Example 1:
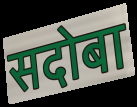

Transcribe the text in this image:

सदोबा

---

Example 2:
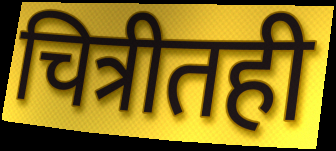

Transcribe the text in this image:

चित्रीतही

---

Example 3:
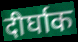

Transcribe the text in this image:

दीर्घाक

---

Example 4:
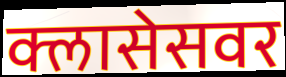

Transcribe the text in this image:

क्लासेसवर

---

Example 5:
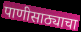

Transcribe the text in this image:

पाणीसाठ्याचा